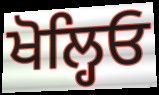
ਖੋਲ੍ਹ੍ਹਿਓ